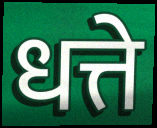
धत्ते